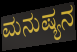
ಮನುಷ್ಯನ